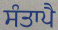
ਸੰਤਾਪੈ